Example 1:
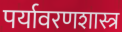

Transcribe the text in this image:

पर्यावरणशास्त्र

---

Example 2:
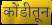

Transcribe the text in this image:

कोंडीतून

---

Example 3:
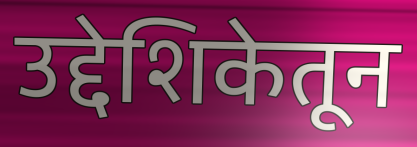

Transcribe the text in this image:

उद्देशिकेतून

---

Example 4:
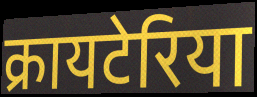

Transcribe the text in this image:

क्रायटेरिया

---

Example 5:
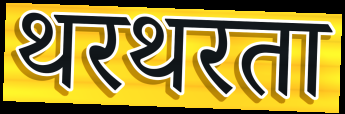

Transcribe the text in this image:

थरथरता